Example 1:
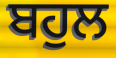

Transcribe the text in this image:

ਬਹੁਲ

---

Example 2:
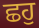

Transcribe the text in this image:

ਛਹੁ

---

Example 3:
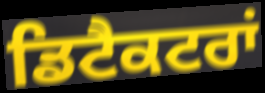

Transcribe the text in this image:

ਡਿਟੈਕਟਰਾਂ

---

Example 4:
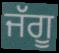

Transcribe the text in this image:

ਜੱਗੂ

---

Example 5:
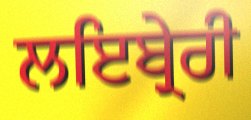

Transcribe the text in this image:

ਲਇਬ੍ਰੇਰੀ